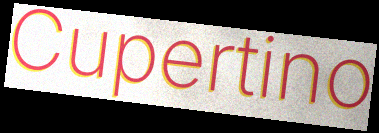
Cupertino